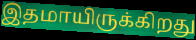
இதமாயிருக்கிறது